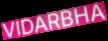
VIDARBHA